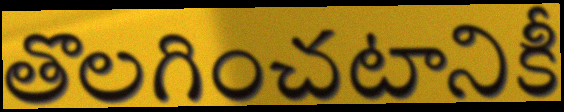
తొలగించటానికీ